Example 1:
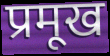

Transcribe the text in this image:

प्रमूख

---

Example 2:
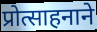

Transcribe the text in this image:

प्रोत्साहनाने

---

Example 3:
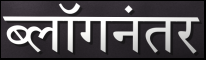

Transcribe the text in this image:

ब्लॉगनंतर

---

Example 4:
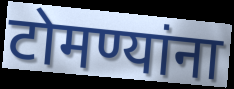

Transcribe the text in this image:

टोमण्यांना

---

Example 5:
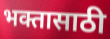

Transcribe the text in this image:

भक्तासाठी